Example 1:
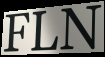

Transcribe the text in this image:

FLN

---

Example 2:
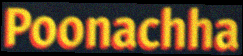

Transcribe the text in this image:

Poonachha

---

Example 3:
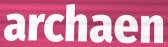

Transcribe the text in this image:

archaen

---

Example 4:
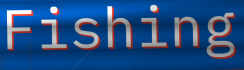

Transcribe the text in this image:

Fishing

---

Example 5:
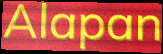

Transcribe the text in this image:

Alapan